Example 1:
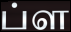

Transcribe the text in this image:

ப்ள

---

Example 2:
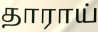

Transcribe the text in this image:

தாராய்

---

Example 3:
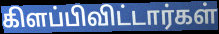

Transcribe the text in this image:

கிளப்பிவிட்டார்கள்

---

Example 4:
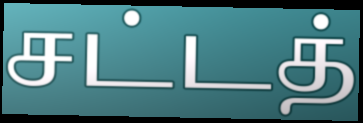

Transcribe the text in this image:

சட்டத்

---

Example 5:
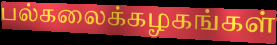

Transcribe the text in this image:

பல்கலைக்கழகங்கள்